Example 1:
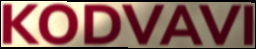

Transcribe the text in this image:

KODVAVI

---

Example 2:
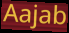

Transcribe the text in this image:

Aajab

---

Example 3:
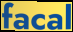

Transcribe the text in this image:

facal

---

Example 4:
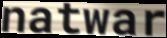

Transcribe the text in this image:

natwar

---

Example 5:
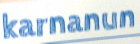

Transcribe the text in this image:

karnanun